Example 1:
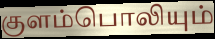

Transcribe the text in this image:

குளம்பொலியும்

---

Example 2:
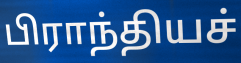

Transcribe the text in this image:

பிராந்தியச்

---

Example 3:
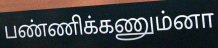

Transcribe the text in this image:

பண்ணிக்கணும்னா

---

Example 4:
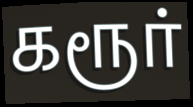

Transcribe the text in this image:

கரூர்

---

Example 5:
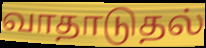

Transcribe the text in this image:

வாதாடுதல்